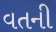
વતની